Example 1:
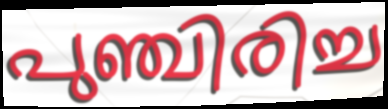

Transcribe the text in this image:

പുഞ്ചിരിച്ച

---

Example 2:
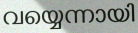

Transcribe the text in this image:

വയ്യെന്നായി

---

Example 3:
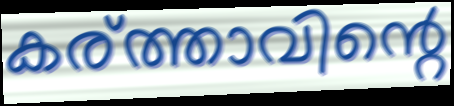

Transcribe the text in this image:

കര്ത്താവിന്റെ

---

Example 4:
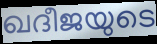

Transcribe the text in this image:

ഖദീജയുടെ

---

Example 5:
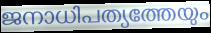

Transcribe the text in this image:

ജനാധിപത്യത്തേയും